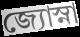
জ্যোস্না